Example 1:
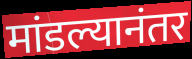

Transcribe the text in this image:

मांडल्यानंतर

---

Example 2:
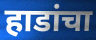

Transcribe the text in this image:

हाडांचा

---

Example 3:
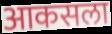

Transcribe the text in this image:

आकसला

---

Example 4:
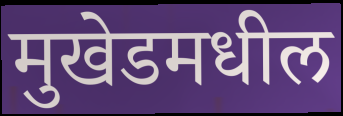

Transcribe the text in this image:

मुखेडमधील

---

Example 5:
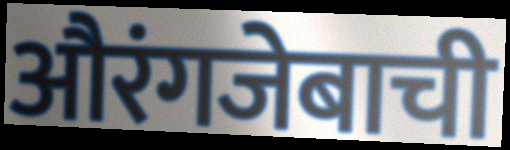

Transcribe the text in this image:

औरंगजेबाची